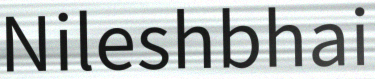
Nileshbhai